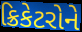
ક્રિકેટરોને